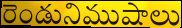
రెండునిముషాలు